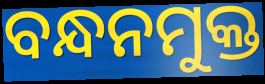
ବନ୍ଧନମୁକ୍ତ